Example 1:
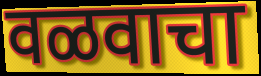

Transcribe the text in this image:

वळवाचा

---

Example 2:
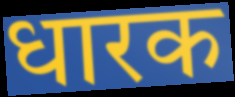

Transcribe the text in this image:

धारक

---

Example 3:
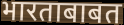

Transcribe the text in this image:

भारताबाबत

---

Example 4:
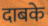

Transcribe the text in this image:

दाबके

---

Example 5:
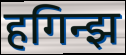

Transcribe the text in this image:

हगिन्झ